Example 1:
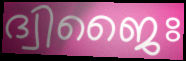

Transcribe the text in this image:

ദ്വിജൈഃ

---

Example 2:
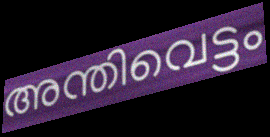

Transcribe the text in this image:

അന്തിവെട്ടം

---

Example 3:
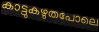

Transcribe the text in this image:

കാട്ടുകഴുതപോലെ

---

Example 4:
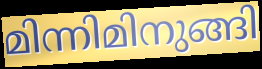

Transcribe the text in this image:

മിന്നിമിനുങ്ങി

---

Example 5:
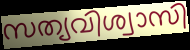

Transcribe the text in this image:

സത്യവിശ്വാസി